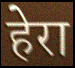
हेरा